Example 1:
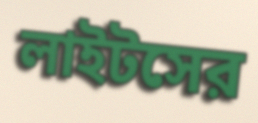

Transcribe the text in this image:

লাইটসের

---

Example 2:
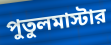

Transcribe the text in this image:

পুতুলমাস্টার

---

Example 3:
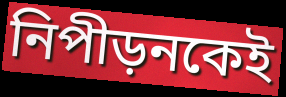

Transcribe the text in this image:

নিপীড়নকেই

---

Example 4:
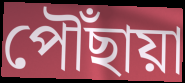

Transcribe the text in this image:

পৌঁছায়া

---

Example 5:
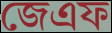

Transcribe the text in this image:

জেএফ